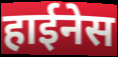
हाईनेस